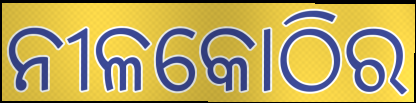
ନୀଳକୋଠିର